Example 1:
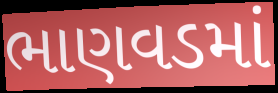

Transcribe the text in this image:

ભાણવડમાં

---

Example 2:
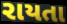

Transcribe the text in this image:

રાયતા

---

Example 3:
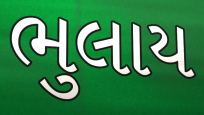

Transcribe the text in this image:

ભુલાય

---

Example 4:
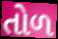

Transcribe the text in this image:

તોળ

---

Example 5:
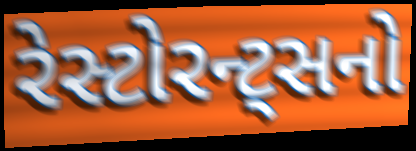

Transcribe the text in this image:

રેસ્ટોરન્ટ્સનો